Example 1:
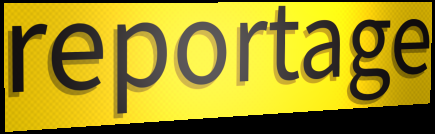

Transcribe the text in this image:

reportage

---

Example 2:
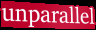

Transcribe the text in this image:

unparallel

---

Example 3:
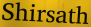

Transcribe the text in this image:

Shirsath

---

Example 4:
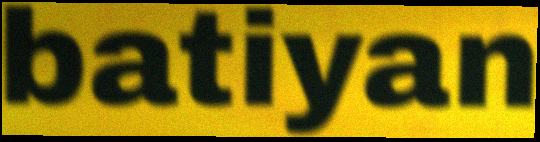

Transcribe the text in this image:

batiyan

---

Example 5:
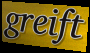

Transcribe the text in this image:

greift